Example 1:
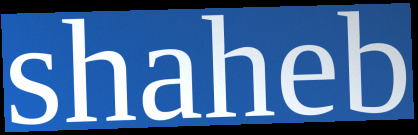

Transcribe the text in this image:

shaheb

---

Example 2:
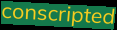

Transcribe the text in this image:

conscripted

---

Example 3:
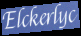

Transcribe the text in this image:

Elckerlyc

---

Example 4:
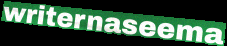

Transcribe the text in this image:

writernaseema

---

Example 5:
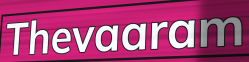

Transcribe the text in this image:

Thevaaram